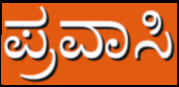
ಪ್ರವಾಸಿ